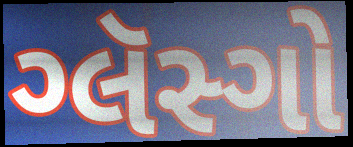
ગ્લૅસ્ગો